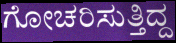
ಗೋಚರಿಸುತ್ತಿದ್ದ